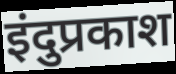
इंदुप्रकाश